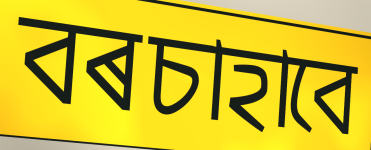
বৰচাহাবে